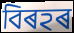
বিৰহৰ